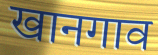
खानगाव